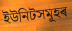
ইউনিটসমূহৰ